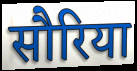
सौरिया